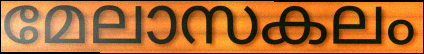
മേലാസകലം